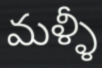
మళ్ళీ